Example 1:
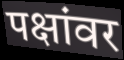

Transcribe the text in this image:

पक्षांवर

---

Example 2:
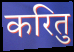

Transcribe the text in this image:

करितु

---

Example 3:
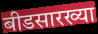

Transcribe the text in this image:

बीडसारख्या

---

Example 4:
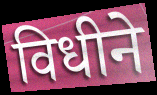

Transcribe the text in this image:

विधीने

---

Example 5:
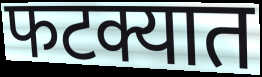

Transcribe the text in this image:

फटक्यात